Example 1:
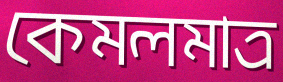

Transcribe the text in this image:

কেমলমাত্র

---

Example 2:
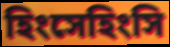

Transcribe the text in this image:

হিংসেহিংসি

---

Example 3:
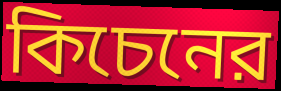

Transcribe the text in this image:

কিচেনের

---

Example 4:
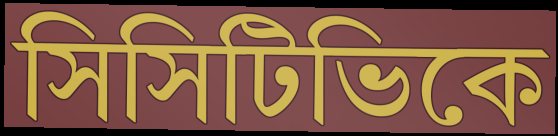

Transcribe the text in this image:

সিসিটিভিকে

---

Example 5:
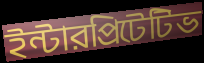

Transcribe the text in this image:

ইন্টারপ্রিটেটিভ